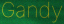
Gandy